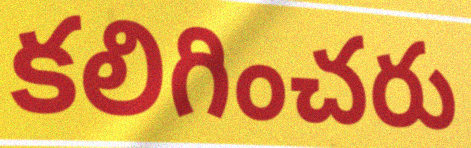
కలిగించరు